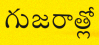
గుజరాత్లో